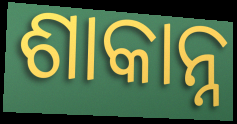
ଶାକାନ୍ନ